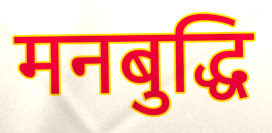
मनबुद्धि